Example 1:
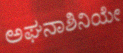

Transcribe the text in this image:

ಅಘನಾಶಿನಿಯೇ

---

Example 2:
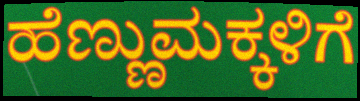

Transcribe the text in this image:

ಹೆಣ್ಣುಮಕ್ಕಳಿಗೆ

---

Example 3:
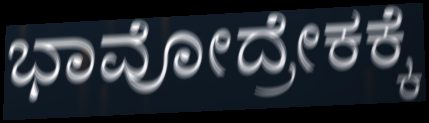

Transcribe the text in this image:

ಭಾವೋದ್ರೇಕಕ್ಕೆ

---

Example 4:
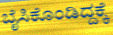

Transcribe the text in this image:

ಬೈಸಿಕೊಂಡಿದ್ದಕ್ಕೆ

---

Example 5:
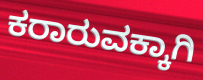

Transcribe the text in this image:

ಕರಾರುವಕ್ಕಾಗಿ